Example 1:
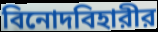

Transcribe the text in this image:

বিনোদবিহারীর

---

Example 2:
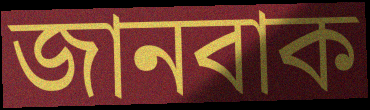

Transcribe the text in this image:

জানবাক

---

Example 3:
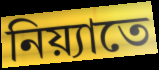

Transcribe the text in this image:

নিয়্যাতে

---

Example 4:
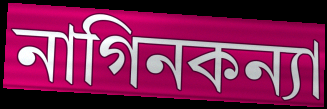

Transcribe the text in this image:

নাগিনকন্যা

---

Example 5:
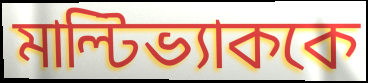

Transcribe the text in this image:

মাল্টিভ্যাককে